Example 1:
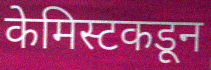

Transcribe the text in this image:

केमिस्टकडून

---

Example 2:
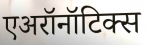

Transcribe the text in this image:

एअरॉनॉटिक्स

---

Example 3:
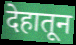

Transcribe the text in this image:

देहातून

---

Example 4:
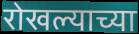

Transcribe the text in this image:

रोखल्याच्या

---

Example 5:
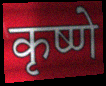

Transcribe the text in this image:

कृष्णे